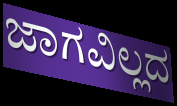
ಜಾಗವಿಲ್ಲದ